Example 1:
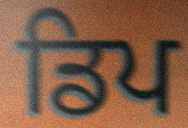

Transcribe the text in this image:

ਡਿਪ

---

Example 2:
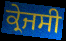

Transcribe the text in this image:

ਕ੍ਰੇਜਸੀ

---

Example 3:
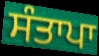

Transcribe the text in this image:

ਸੰਤਾਪਾ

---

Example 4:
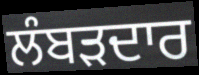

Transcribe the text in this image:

ਲੰਬੜਦਾਰ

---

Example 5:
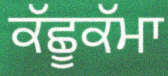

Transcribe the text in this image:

ਕੱਛੂਕੱਮਾ